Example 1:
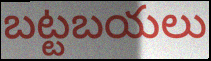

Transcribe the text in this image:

బట్టబయలు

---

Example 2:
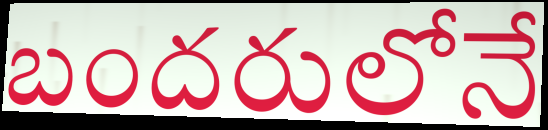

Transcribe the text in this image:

బందరులోనే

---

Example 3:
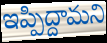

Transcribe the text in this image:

ఇప్పిద్దామని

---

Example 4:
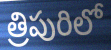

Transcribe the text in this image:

త్రిపురిలో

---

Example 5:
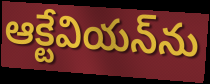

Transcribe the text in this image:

ఆక్టేవియన్‌ను